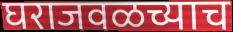
घराजवळच्याच